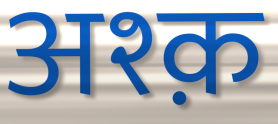
अश्क़